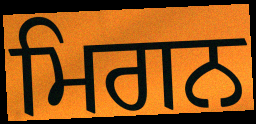
ਮਿਗਨ